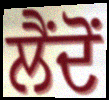
ਲੈਂਦੋਂ